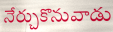
నేర్చుకొనువాడు